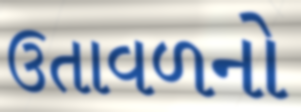
ઉતાવળનો